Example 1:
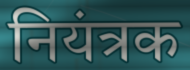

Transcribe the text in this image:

नियंत्रक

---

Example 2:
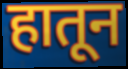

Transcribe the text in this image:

हातून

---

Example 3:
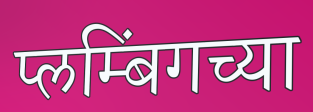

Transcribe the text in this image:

प्लम्बिंगच्या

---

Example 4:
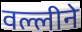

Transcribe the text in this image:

वल्लीने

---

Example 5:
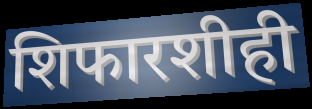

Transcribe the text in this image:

शिफारशीही